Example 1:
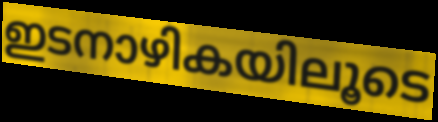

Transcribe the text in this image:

ഇടനാഴികയിലൂടെ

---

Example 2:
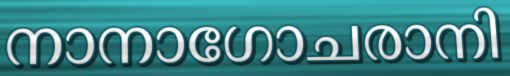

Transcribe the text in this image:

നാനാഗോചരാനി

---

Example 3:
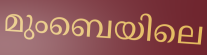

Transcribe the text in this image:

മുംബെയിലെ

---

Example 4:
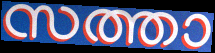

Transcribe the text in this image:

സത്താ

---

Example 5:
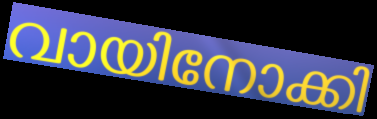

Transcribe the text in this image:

വായിനോക്കി